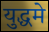
युद्धमे